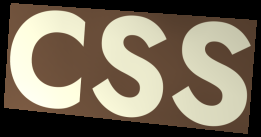
CSS